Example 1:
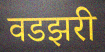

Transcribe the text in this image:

वडझरी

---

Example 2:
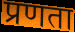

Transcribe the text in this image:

प्रणता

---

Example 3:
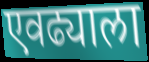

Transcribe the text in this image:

एवढ्याला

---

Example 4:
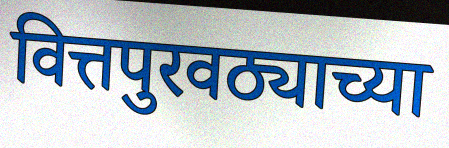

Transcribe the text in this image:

वित्तपुरवठ्याच्या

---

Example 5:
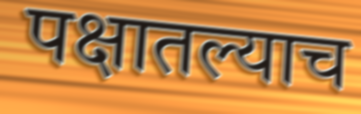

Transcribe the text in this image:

पक्षातल्याच